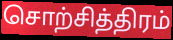
சொற்சித்திரம்